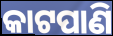
କାଟପାଣି